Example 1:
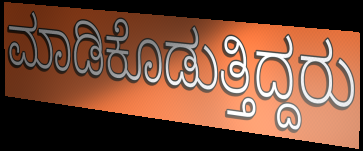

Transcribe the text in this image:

ಮಾಡಿಕೊಡುತ್ತಿದ್ದರು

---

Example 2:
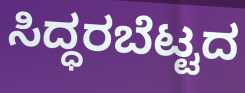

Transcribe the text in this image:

ಸಿದ್ಧರಬೆಟ್ಟದ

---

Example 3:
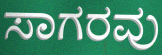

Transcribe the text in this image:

ಸಾಗರವು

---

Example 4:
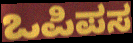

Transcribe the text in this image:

ಒಪಿಪಸ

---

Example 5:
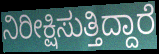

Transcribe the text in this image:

ನಿರೀಕ್ಷಿಸುತ್ತಿದ್ದಾರೆ